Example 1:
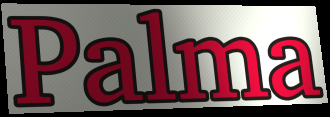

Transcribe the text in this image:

Palma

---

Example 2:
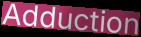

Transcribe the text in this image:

Adduction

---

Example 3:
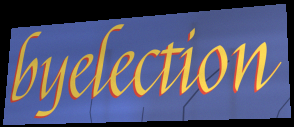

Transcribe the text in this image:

byelection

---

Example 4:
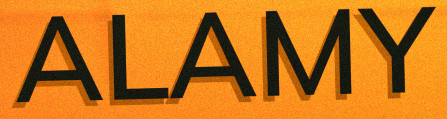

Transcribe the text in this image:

ALAMY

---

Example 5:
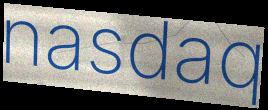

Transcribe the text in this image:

nasdaq